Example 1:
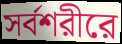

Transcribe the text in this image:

সর্বশরীরে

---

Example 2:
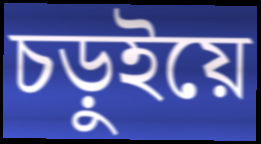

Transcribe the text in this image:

চড়ুইয়ে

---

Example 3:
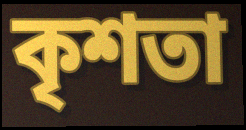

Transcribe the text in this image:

কৃশতা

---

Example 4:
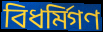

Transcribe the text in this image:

বিধর্মিগণ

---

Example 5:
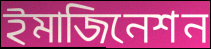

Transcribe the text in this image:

ইমাজিনেশন